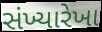
સંખ્યારેખા